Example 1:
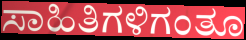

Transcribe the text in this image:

ಸಾಹಿತಿಗಳಿಗಂತೂ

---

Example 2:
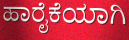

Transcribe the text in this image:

ಹಾರೈಕೆಯಾಗಿ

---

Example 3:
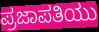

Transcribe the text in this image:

ಪ್ರಜಾಪತಿಯು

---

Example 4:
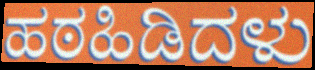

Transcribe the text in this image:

ಹಠಹಿಡಿದಳು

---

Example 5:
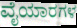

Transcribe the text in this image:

ವೈಯಾರಗಳ